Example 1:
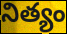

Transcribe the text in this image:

నిత్యం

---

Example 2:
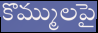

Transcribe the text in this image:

కొమ్ములపై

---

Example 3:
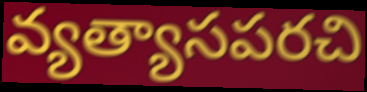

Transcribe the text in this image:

వ్యత్యాసపరచి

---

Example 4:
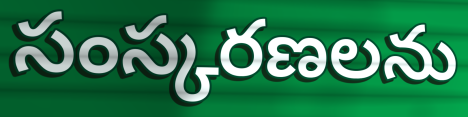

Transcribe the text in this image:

సంస్కరణలను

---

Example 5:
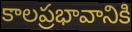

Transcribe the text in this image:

కాలప్రభావానికి